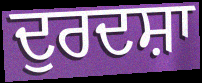
ਦੁਰਦਸ਼ਾ